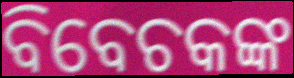
ବିବେଚକଙ୍କ